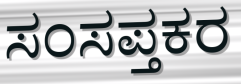
ಸಂಸಪ್ತಕರ